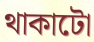
থাকাটো